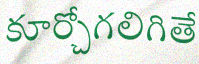
కూర్చోగలిగితే